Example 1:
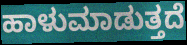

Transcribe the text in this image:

ಹಾಳುಮಾಡುತ್ತದೆ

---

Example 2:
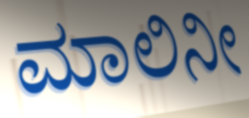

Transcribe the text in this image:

ಮಾಲಿನೀ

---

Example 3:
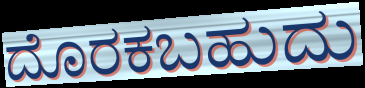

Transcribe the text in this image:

ದೊರಕಬಹುದು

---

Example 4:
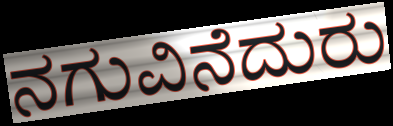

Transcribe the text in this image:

ನಗುವಿನೆದುರು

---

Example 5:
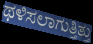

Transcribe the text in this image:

ಥಳಿಸಲಾಗುತ್ತಿತ್ತು